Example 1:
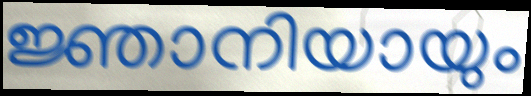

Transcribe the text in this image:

ജ്ഞാനിയായും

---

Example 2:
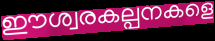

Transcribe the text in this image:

ഈശ്വരകല്പനകളെ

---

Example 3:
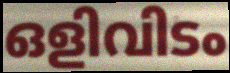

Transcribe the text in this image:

ഒളിവിടം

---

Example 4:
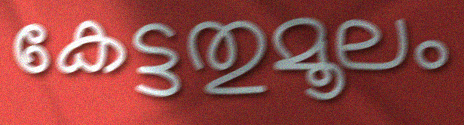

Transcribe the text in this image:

കേട്ടതുമൂലം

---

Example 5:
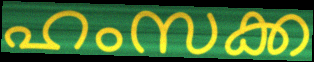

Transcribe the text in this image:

ഹംസക്ക